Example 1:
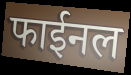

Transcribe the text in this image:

फाईनल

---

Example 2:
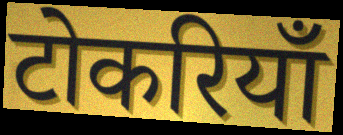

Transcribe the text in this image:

टोकरियाँ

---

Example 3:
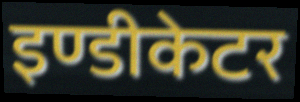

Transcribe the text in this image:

इण्डीकेटर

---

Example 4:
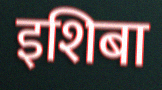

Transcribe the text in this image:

इशिबा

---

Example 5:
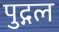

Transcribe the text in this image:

पुद्गल